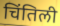
चिंतिली